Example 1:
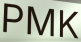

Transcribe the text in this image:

PMK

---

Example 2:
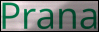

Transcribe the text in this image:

Prana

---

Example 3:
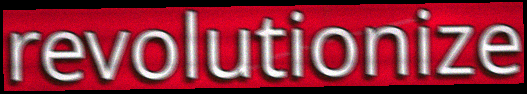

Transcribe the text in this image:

revolutionize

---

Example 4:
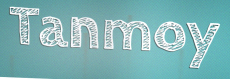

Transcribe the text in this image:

Tanmoy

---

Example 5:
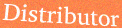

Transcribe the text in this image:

Distributor